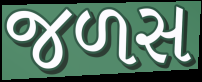
જળસ